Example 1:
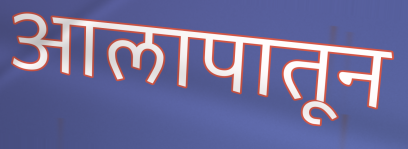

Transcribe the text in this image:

आलापातून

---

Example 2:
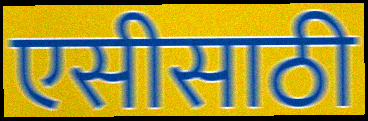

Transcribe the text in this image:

एसीसाठी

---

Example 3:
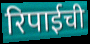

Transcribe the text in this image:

रिपाईची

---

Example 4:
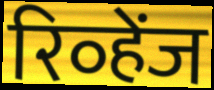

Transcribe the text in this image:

रिव्हेंज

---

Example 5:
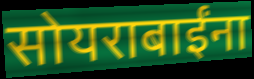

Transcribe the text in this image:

सोयराबाईंना